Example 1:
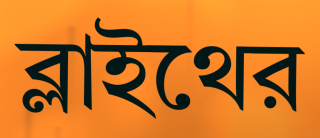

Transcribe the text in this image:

ব্লাইথের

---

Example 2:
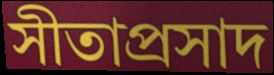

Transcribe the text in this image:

সীতাপ্রসাদ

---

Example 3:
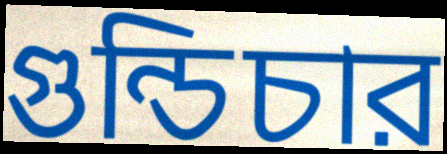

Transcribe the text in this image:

গুন্ডিচার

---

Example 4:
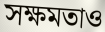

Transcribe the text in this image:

সক্ষমতাও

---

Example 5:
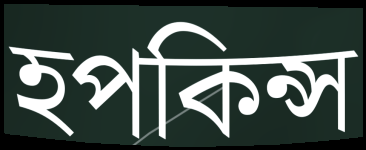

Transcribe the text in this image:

হপকিন্স